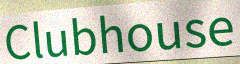
Clubhouse